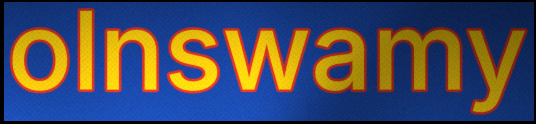
olnswamy